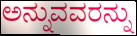
ಅನ್ನುವವರನ್ನು